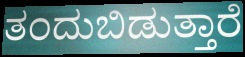
ತಂದುಬಿಡುತ್ತಾರೆ